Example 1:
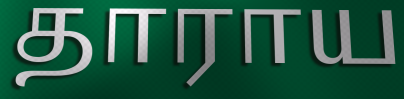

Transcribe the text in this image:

தாராய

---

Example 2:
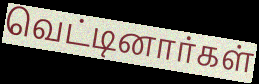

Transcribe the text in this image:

வெட்டினார்கள்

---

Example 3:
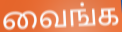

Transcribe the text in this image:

வைங்க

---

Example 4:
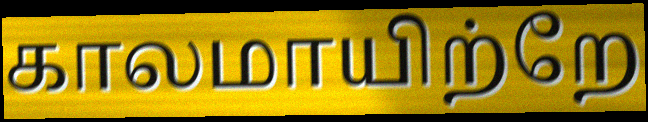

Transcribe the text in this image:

காலமாயிற்றே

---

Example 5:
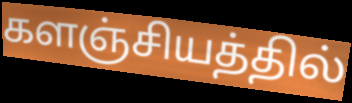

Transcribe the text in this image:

களஞ்சியத்தில்